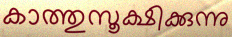
കാത്തുസൂക്ഷിക്കുന്നു